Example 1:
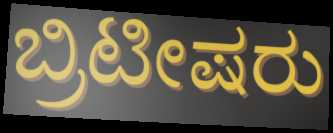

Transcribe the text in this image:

ಬ್ರಿಟೀಷರು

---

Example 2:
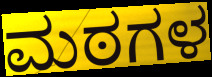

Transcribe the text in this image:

ಮಠಗಳ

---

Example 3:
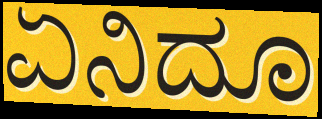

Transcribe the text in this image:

ಏನಿದೂ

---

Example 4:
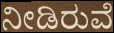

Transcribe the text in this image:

ನೀಡಿರುವೆ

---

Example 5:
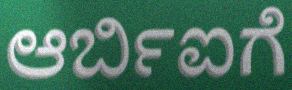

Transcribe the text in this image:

ಆರ್ಬಿಐಗೆ